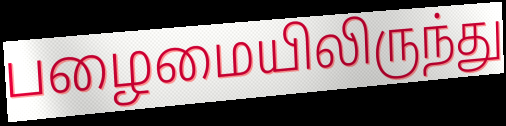
பழைமையிலிருந்து